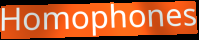
Homophones